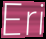
Eri